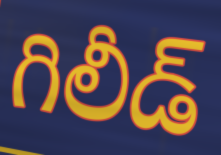
గిలీడ్